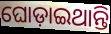
ଘୋଡ଼ାଇଥାନ୍ତି